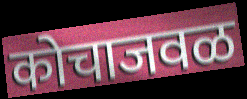
कोचाजवळ